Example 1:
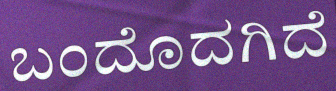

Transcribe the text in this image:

ಬಂದೊದಗಿದೆ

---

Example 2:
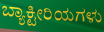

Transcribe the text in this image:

ಬ್ಯಾಕ್ಟೀರಿಯಗಳು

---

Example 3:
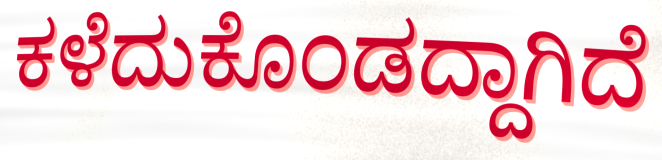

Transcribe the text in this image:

ಕಳೆದುಕೊಂಡದ್ದಾಗಿದೆ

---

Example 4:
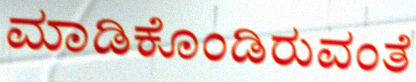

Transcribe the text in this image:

ಮಾಡಿಕೊಂಡಿರುವಂತೆ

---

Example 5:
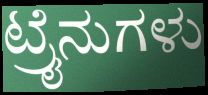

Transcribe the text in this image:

ಟ್ರೈನುಗಳು